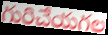
గురిచేయగల